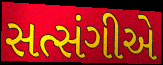
સત્સંગીએ